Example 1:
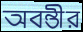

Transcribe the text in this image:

অবন্তীর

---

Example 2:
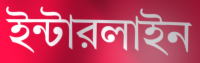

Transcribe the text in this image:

ইন্টারলাইন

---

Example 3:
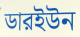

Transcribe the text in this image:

ডারইউন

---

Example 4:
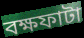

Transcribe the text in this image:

বক্ষফাটা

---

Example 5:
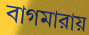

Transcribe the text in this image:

বাগমারায়